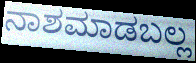
ನಾಶಮಾಡಬಲ್ಲ